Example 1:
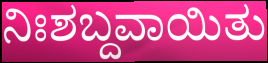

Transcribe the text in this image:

ನಿಃಶಬ್ದವಾಯಿತು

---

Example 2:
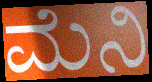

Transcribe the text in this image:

ಮೆನಿ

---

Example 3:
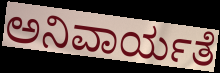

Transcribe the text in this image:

ಅನಿವಾರ್ಯತೆ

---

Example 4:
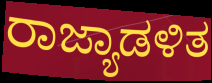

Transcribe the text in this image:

ರಾಜ್ಯಾಡಳಿತ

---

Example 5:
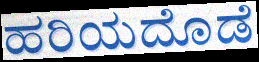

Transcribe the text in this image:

ಹರಿಯದೊಡೆ